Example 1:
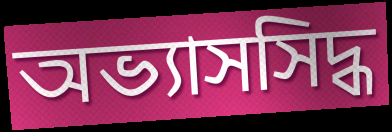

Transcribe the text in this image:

অভ্যাসসিদ্ধ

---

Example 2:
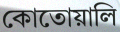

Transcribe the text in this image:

কোতোয়ালি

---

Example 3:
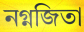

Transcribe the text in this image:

নগ্নজিতা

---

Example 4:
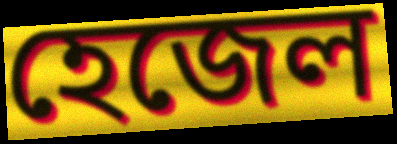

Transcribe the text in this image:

হেজেল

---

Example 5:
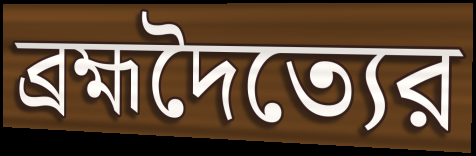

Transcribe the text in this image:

ব্রহ্মদৈত্যের